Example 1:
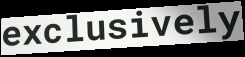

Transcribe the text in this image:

exclusively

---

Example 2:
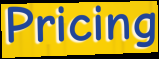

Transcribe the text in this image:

Pricing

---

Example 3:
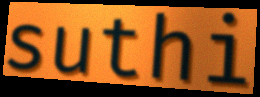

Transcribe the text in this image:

suthi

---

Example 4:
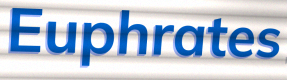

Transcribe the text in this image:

Euphrates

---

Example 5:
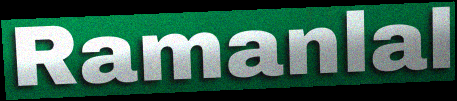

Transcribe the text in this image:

Ramanlal